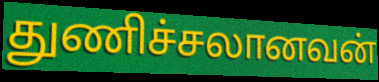
துணிச்சலானவன்